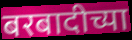
बरबादीच्या